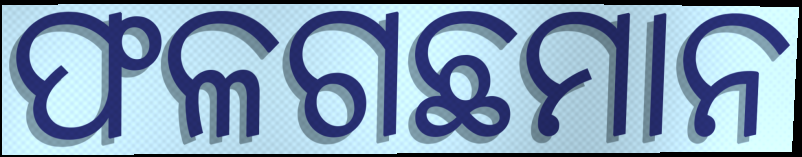
ଫଳଗଛମାନ